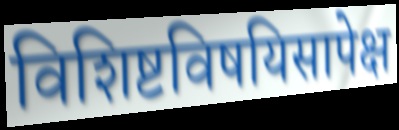
विशिष्टविषयिसापेक्ष